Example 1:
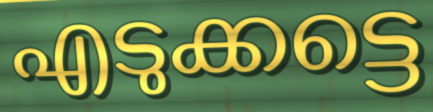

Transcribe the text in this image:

എടുക്കട്ടെ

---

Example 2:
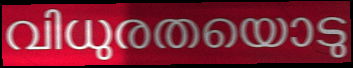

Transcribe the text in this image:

വിധുരതയൊടു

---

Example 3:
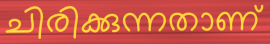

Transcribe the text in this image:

ചിരിക്കുന്നതാണ്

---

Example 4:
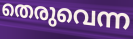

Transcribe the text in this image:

തെരുവെന്ന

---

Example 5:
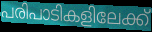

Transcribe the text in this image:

പരിപാടികളിലേക്ക്